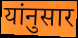
यांनुसार